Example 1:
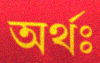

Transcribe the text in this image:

অৰ্থঃ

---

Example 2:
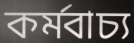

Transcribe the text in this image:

কৰ্মবাচ্য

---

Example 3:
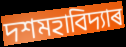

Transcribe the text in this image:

দশমহাবিদ্যাৰ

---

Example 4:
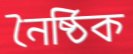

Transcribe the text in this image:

নৈষ্ঠিক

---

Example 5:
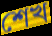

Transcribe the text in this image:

শেখ